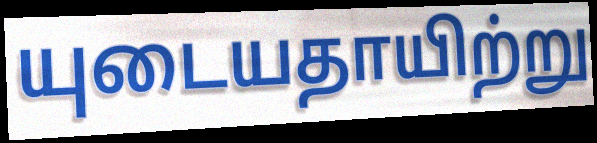
யுடையதாயிற்று